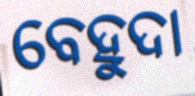
ବେହୁଦା